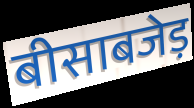
बीसाबजेड़